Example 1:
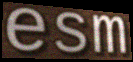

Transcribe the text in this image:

esm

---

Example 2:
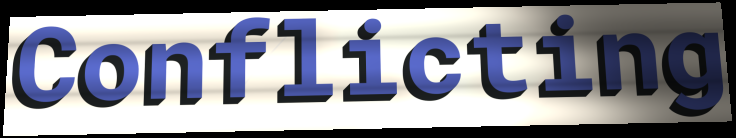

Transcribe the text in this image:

Conflicting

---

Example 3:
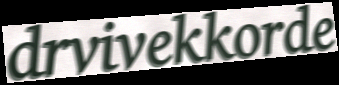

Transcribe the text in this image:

drvivekkorde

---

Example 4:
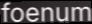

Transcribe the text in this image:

foenum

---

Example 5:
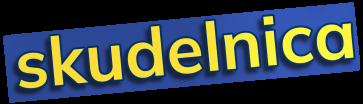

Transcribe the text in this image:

skudelnica